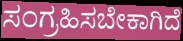
ಸಂಗ್ರಹಿಸಬೇಕಾಗಿದೆ